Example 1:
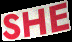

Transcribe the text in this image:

SHE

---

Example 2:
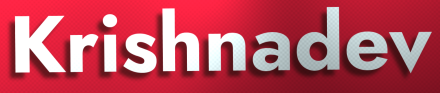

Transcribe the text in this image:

Krishnadev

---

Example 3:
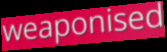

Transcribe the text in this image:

weaponised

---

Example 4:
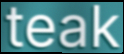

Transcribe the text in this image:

teak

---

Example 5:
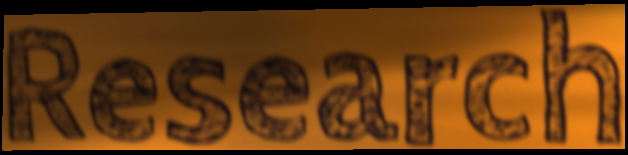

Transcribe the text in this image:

Research